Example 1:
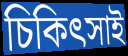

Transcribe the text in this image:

চিকিৎসাই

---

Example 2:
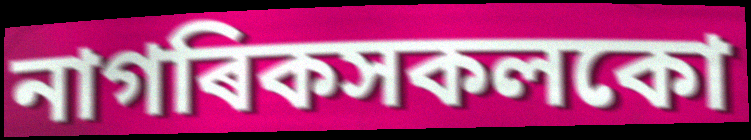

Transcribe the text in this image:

নাগৰিকসকলকো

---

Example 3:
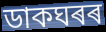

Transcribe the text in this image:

ডাকঘৰৰ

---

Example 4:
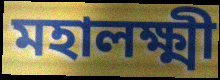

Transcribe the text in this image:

মহালক্ষ্মী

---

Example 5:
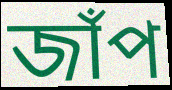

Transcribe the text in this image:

জাঁপ